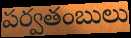
పర్వతంబులు